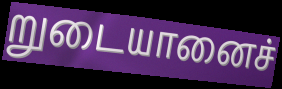
றுடையானைச்